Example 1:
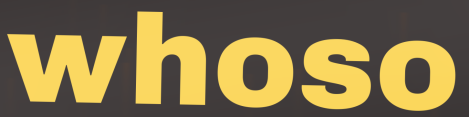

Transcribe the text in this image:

whoso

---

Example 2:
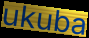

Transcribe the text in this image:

ukuba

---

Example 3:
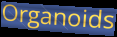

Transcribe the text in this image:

Organoids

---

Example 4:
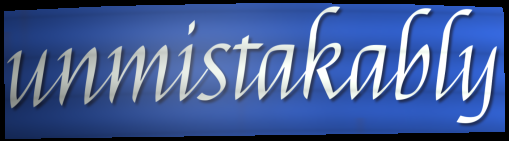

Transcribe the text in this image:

unmistakably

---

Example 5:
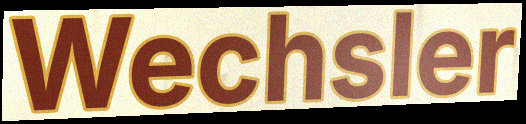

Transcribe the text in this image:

Wechsler